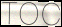
TOC